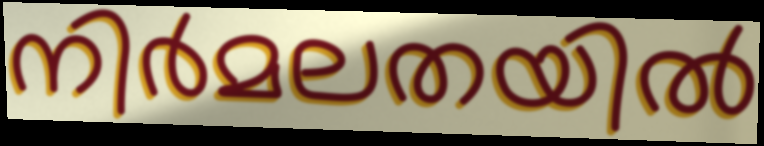
നിർമലതയിൽ